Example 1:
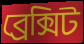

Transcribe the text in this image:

ব্রেক্সিট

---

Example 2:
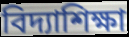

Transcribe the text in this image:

বিদ্যাশিক্ষা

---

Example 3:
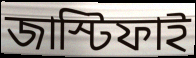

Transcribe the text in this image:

জাস্টিফাই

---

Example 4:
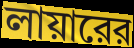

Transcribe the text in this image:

লায়ারের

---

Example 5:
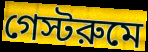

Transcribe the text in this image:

গেস্টরুমে